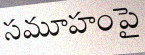
సమూహంపై